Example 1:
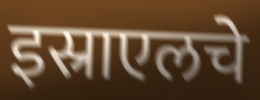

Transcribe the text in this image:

इस्राएलचे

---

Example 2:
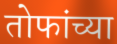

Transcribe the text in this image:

तोफांच्या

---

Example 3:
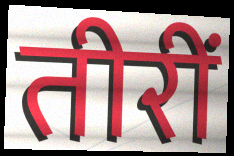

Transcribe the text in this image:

तीरीं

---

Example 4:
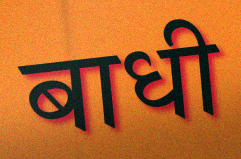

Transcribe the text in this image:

बाधी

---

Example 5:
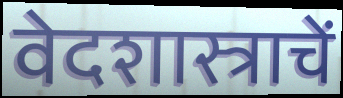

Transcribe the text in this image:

वेदशास्त्राचें